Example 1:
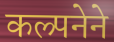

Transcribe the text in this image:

कल्पनेने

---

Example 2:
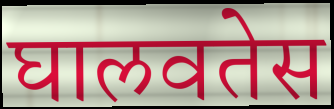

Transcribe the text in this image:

घालवतेस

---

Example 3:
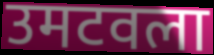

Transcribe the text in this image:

उमटवला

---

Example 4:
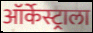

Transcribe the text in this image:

ऑर्केस्ट्राला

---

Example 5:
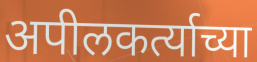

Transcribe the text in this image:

अपीलकर्त्याच्या